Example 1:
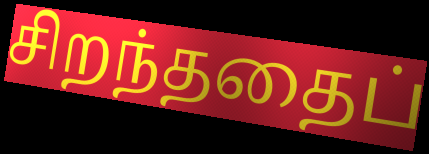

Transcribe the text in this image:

சிறந்ததைப்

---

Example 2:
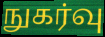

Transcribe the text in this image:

நுகர்வு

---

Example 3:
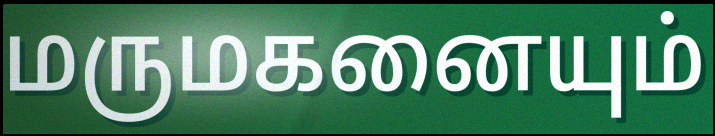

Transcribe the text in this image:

மருமகனையும்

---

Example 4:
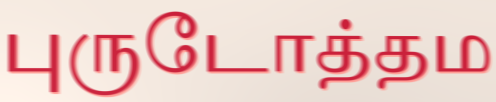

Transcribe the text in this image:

புருடோத்தம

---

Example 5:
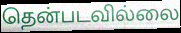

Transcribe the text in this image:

தென்படவில்லை